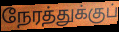
நேரத்துக்குப்